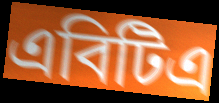
এবিটিএ